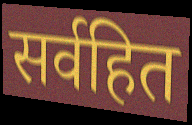
सर्वहित